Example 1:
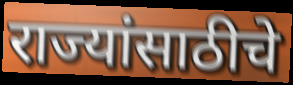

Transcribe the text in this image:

राज्यांसाठीचे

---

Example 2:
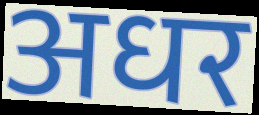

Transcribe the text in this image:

अधर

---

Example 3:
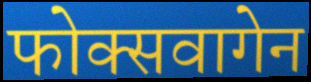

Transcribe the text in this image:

फोक्सवागेन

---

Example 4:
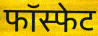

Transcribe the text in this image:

फॉस्फेट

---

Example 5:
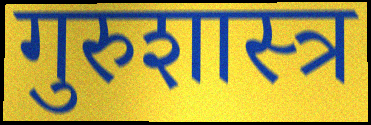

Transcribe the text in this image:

गुरुशास्त्र